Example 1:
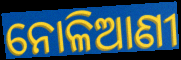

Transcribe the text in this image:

ନୋଳିଆଣୀ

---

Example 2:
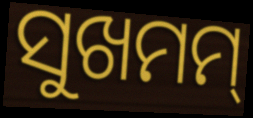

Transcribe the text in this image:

ସୁଖମମ୍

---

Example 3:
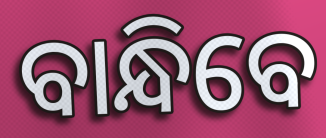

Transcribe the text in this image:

ବାନ୍ଧିବେ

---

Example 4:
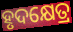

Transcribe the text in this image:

ହୃଦକ୍ଷେତ୍ର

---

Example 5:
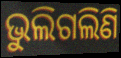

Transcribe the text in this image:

ଭୁଲିଗଲିଣି